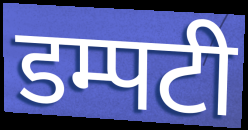
डम्पटी